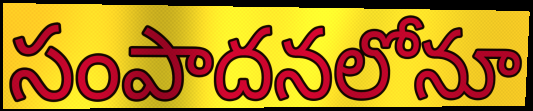
సంపాదనలోనూ